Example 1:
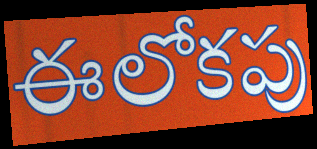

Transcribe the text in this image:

ఈలోకపు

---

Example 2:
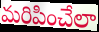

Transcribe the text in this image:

మరిపించేలా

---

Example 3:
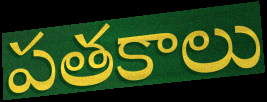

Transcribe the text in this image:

పతకాలు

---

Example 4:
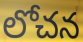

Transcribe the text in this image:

లోచన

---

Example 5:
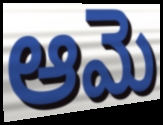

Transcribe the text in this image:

ఆమె